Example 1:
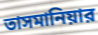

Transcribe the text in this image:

তাসমানিয়ার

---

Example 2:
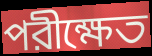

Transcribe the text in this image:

পরীক্ষেত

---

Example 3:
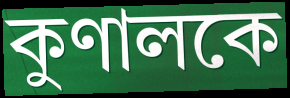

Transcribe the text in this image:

কুণালকে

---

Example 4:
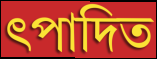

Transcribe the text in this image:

ৎপাদিত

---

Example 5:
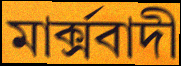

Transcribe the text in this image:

মার্ক্সবাদী